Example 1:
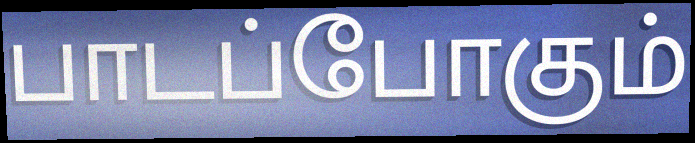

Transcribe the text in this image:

பாடப்போகும்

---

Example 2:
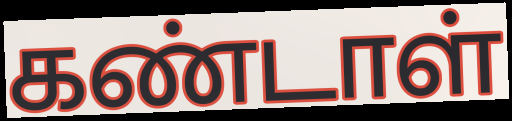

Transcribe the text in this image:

கண்டாள்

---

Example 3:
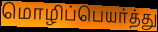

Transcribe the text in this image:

மொழிப்பெயர்த்து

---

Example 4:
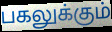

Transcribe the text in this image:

பகலுக்கும்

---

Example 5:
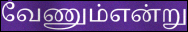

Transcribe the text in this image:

வேணும்என்று